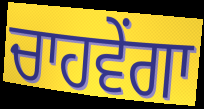
ਚਾਹਵੇਂਗਾ